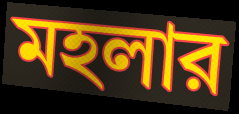
মহলার